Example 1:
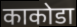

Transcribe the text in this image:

काकोडा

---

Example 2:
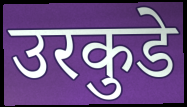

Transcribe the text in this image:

उरकुडे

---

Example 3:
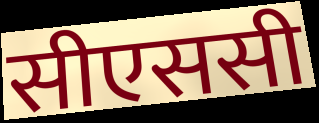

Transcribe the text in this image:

सीएससी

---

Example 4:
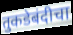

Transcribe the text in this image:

तुकडेबंदीचा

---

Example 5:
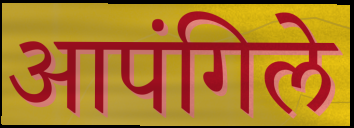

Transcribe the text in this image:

आपंगिले